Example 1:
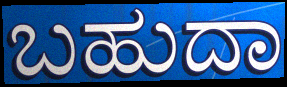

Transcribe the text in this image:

ಬಹುದಾ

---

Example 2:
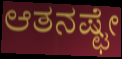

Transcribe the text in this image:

ಆತನಷ್ಟೇ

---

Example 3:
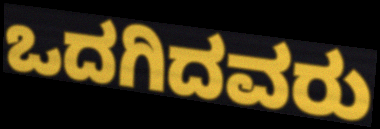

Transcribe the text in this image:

ಒದಗಿದವರು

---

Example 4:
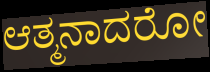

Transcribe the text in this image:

ಆತ್ಮನಾದರೋ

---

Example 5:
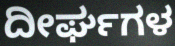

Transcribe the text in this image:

ದೀರ್ಘಗಳ